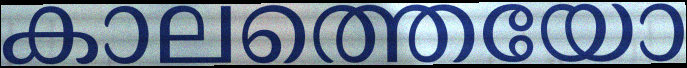
കാലത്തെയോ